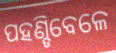
ପହଣ୍ଡିବେଳେ